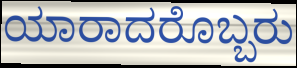
ಯಾರಾದರೊಬ್ಬರು